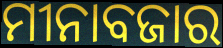
ମୀନାବଜାର